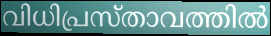
വിധിപ്രസ്താവത്തിൽ